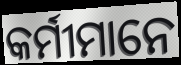
କର୍ମୀମାନେ